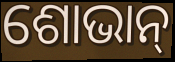
ଶୋଭାନ୍